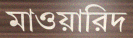
মাওয়ারিদ